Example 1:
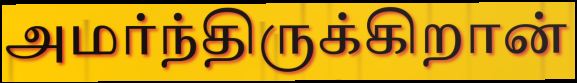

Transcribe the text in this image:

அமர்ந்திருக்கிறான்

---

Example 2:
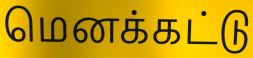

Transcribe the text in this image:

மெனக்கட்டு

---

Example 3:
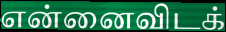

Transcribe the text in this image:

என்னைவிடக்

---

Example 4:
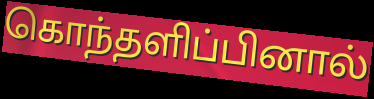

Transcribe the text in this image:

கொந்தளிப்பினால்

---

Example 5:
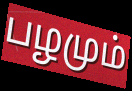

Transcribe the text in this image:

பழமும்